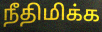
நீதிமிக்க